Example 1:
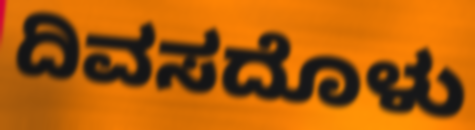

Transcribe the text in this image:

ದಿವಸದೊಳು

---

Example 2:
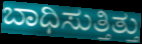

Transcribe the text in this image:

ಬಾಧಿಸುತ್ತಿತ್ತು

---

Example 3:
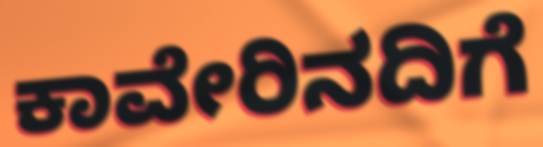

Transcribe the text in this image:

ಕಾವೇರಿನದಿಗೆ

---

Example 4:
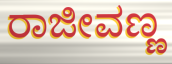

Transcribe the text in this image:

ರಾಜೀವಣ್ಣ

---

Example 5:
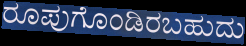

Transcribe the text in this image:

ರೂಪುಗೊಂಡಿರಬಹುದು